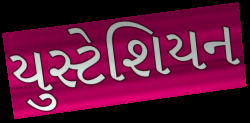
યુસ્ટેશિયન